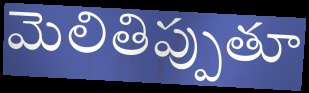
మెలితిప్పుతూ